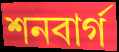
শনবার্গ